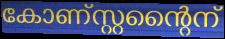
കോണ്സ്റ്റന്റൈന്